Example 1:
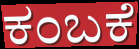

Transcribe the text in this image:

ಕಂಬಕೆ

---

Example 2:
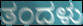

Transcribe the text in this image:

ತಂದಳು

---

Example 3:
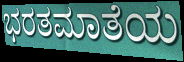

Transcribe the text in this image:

ಭರತಮಾತೆಯ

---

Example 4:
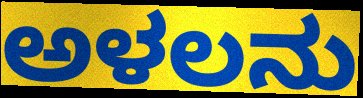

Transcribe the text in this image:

ಅಳಲನು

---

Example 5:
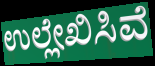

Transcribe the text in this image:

ಉಲ್ಲೇಖಿಸಿವೆ